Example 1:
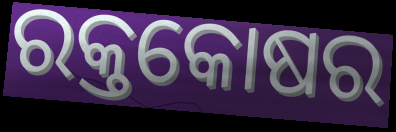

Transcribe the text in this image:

ରକ୍ତକୋଷର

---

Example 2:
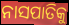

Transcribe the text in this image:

ନାସପାତିକୁ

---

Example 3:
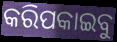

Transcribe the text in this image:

କରିପକାଇବୁ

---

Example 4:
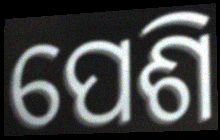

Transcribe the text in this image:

ପେଶି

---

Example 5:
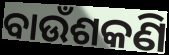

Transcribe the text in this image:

ବାଉଁଶକଣି